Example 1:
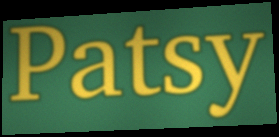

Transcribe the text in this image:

Patsy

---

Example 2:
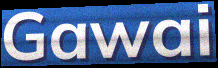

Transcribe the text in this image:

Gawai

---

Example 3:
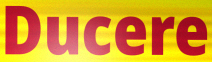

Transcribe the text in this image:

Ducere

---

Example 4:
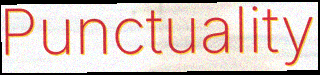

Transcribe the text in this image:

Punctuality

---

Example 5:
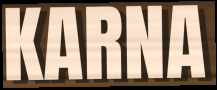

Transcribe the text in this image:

KARNA